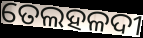
ତେଲହଳଦୀ